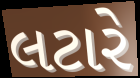
લટારે